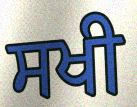
ਸਖੀ